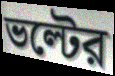
ভল্টের